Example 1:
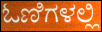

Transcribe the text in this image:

ಓಣಿಗಳಲ್ಲಿ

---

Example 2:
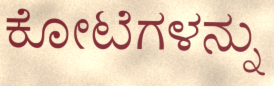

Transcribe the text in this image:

ಕೋಟೆಗಳನ್ನು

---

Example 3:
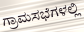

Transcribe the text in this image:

ಗ್ರಾಮಸಭೆಗಳಲ್ಲಿ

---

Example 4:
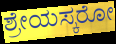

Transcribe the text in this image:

ಶ್ರೇಯಸ್ಕರೋ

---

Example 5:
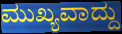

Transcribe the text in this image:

ಮುಖ್ಯವಾದ್ದು